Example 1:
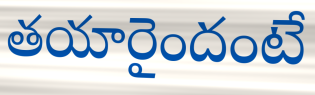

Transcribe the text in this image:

తయారైందంటే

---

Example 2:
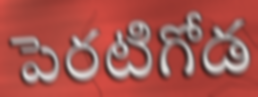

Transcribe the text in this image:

పెరటిగోడ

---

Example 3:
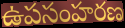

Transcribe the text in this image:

ఉపసంహరణ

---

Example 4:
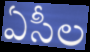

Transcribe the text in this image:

ఏసీల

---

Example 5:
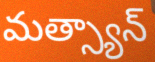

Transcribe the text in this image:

మత్స్యాన్